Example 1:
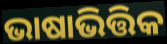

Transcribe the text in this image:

ଭାଷାଭିତ୍ତିକ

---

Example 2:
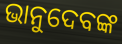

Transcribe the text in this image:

ଭାନୁଦେବଙ୍କ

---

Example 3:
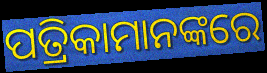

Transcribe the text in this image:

ପତ୍ରିକାମାନଙ୍କରେ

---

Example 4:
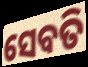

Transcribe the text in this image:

ସେବତି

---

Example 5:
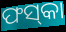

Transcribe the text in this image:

ଫସ୍‌କା